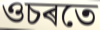
ওচৰতে